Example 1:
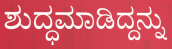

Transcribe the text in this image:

ಶುದ್ಧಮಾಡಿದ್ದನ್ನು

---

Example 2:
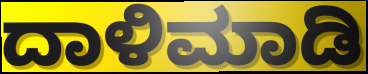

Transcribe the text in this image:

ದಾಳಿಮಾಡಿ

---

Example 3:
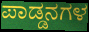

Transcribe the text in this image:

ಪಾಡ್ಡನಗಳ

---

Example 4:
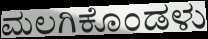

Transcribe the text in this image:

ಮಲಗಿಕೊಂಡಳು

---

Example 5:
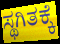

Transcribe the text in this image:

ಸ್ಥಗಿತಕ್ಕೆ